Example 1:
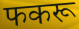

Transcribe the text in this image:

फकरू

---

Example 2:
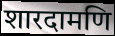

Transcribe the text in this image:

शारदामणि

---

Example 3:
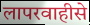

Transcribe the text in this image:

लापरवाहीसे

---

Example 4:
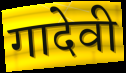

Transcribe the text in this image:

गादेवी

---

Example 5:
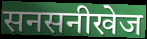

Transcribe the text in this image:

सनसनीखेज